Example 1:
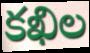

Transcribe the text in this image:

కఖిల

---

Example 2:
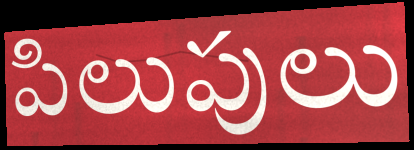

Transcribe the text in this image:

పిలుపులు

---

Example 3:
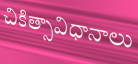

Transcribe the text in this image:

చికిత్సావిధానాలు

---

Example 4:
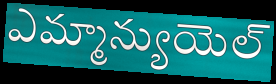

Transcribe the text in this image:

ఎమ్మాన్యుయెల్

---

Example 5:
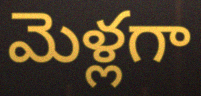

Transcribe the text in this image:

మెళ్లగా